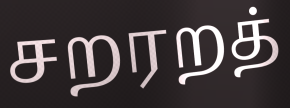
சறரறத்